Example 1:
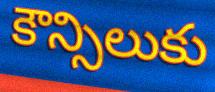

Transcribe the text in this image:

కౌన్సిలుకు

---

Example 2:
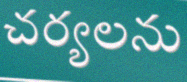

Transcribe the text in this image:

చర్యలను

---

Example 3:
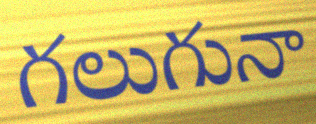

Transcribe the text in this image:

గలుగునా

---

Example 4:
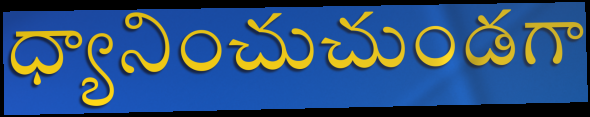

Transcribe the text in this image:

ధ్యానించుచుండగా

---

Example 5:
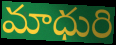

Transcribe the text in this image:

మాధురి